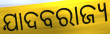
ଯାଦବରାଜ୍ୟ